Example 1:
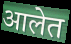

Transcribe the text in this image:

आलेत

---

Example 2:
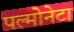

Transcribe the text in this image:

पल्मोनेटा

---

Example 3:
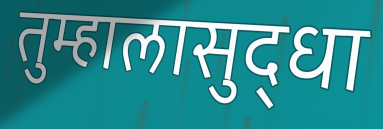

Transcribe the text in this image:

तुम्हालासुद्धा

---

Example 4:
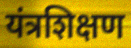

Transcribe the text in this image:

यंत्रशिक्षण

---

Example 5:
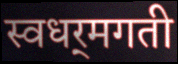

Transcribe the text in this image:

स्वधर्मगती